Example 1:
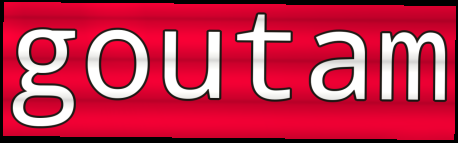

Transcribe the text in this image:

goutam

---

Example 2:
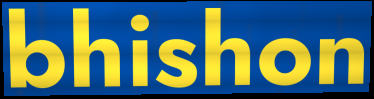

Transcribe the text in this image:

bhishon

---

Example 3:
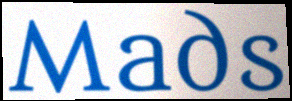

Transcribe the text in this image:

Mads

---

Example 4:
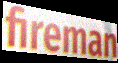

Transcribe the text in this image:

fireman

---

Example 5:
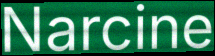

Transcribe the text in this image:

Narcine